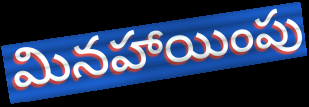
మినహాయింపు